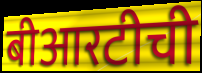
बीआरटीची